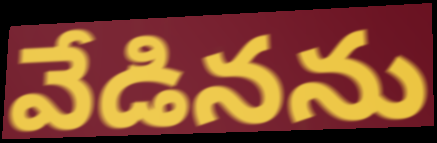
వేడినను